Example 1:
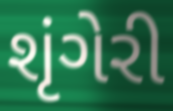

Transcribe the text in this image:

શૃંગેરી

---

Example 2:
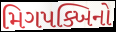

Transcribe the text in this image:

મિગપક્ખિનો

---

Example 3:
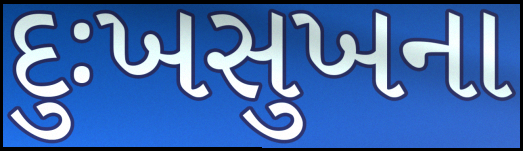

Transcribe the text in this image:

દુઃખસુખના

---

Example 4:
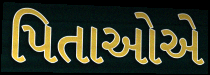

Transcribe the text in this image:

પિતાઓએ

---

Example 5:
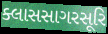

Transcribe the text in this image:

ક્લાસસાગરસૂરિ